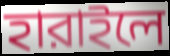
হারাইলে